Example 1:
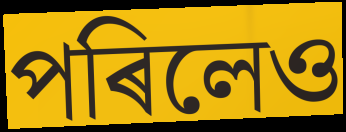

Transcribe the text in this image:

পৰিলেও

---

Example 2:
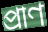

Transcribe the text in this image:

প্ৰাণ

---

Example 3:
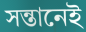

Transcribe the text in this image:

সন্তানেই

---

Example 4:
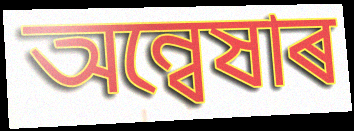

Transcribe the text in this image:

অন্বেষাৰ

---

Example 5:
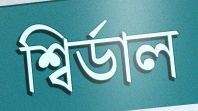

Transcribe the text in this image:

শ্বিৰ্ডাল